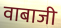
वाबाजी